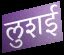
लुशई